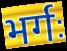
भर्गः